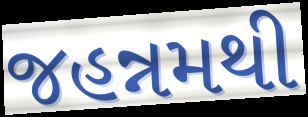
જહન્નમથી